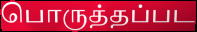
பொருத்தப்பட